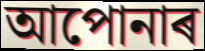
আপোনাৰ